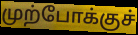
முற்போக்குச்